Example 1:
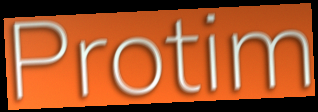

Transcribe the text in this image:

Protim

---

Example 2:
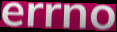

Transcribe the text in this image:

errno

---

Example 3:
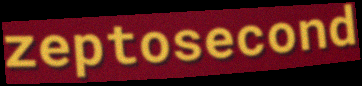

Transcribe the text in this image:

zeptosecond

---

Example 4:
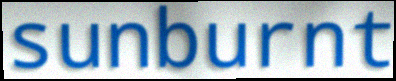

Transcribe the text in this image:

sunburnt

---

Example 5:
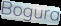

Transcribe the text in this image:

Bogura